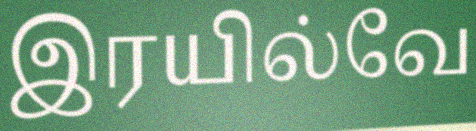
இரயில்வே